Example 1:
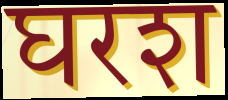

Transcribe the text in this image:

घरश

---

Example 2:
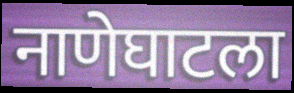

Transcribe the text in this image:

नाणेघाटला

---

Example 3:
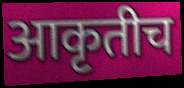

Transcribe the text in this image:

आकृतीच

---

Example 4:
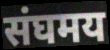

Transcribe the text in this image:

संघमय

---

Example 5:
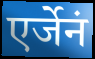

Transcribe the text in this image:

एर्जेनं